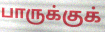
பாருக்குக்